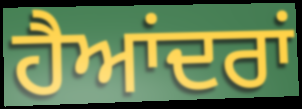
ਹੈਆਂਦਰਾਂ